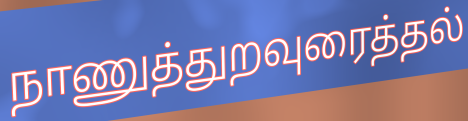
நாணுத்துறவுரைத்தல்